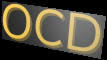
OCD